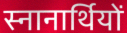
स्नानार्थियों